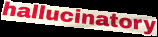
hallucinatory